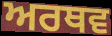
ਅਰਥਵ